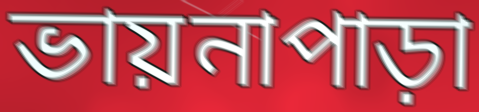
ভায়নাপাড়া